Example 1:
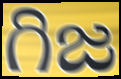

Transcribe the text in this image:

గిజ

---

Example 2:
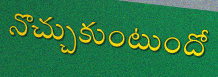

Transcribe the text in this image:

నొచ్చుకుంటుందో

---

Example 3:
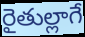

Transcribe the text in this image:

రైతుల్లాగే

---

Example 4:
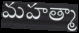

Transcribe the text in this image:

మహత్మా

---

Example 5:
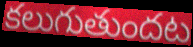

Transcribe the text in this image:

కలుగుతుందట